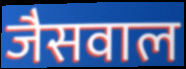
जैसवाल